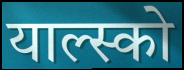
याल्स्को